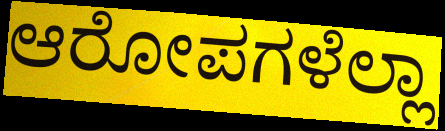
ಆರೋಪಗಳೆಲ್ಲಾ